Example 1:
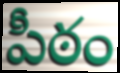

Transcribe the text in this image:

పీఠం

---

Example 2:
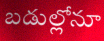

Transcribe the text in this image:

బడుల్లోనూ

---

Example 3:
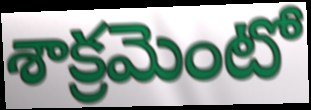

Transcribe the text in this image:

శాక్రమెంటో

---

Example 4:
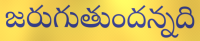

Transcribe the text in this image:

జరుగుతుందన్నది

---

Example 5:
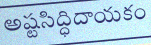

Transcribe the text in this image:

అష్టసిద్ధిదాయకం